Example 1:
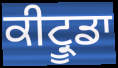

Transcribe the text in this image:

ਕੀਟ੍ਰੂਡਾ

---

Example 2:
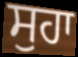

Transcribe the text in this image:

ਸੁਹਾ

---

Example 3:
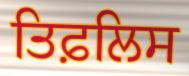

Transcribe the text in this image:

ਤਿਫ਼ਲਿਸ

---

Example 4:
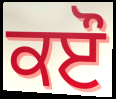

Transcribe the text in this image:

ਕੲੌ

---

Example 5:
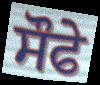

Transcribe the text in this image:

ਸੌਫੇ